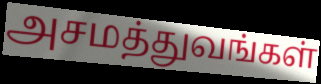
அசமத்துவங்கள்